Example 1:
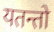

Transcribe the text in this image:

यतन्तो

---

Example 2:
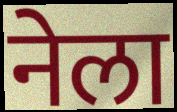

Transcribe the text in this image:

नेला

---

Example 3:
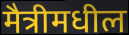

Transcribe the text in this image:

मैत्रीमधील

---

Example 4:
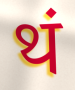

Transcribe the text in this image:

थं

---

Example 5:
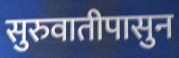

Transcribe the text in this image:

सुरुवातीपासुन